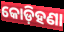
କୋଡ଼ିହଣା